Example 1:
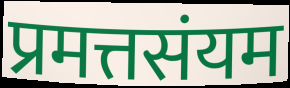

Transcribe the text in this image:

प्रमत्तसंयम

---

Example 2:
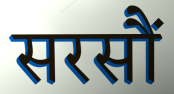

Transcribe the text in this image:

सरसौं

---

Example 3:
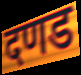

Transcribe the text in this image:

दणड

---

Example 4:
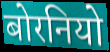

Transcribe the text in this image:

बोरनियो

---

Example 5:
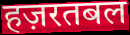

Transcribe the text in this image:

हज़रतबल